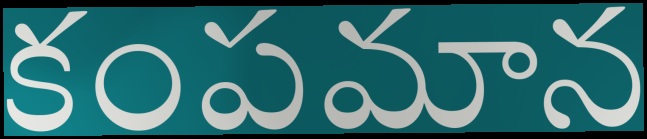
కంపమాన